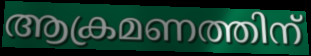
ആക്രമണത്തിന്